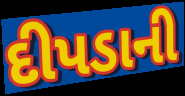
દીપડાની